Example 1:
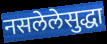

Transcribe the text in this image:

नसलेलेसुद्धा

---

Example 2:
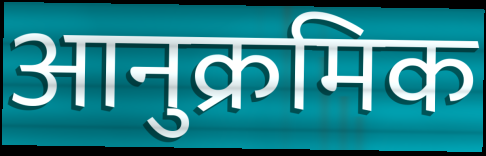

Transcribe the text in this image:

आनुक्रमिक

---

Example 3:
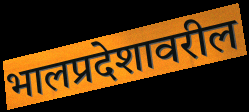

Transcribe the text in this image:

भालप्रदेशावरील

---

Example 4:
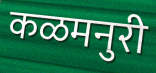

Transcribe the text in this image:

कळमनुरी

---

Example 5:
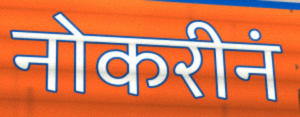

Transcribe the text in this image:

नोकरीनं